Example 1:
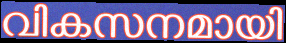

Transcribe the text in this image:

വികസനമായി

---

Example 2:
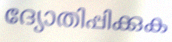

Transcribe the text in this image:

ദ്യോതിപ്പിക്കുക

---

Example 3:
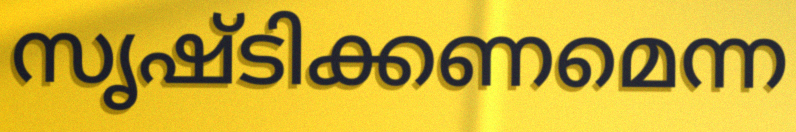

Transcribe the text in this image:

സൃഷ്ടിക്കണമെന്ന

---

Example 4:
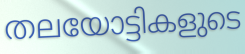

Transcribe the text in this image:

തലയോട്ടികളുടെ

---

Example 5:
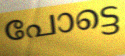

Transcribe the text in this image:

പോട്ടെ